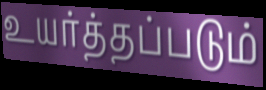
உயர்த்தப்படும்